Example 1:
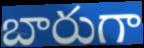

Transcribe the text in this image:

బారుగా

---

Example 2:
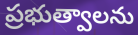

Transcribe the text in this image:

ప్రభుత్వాలను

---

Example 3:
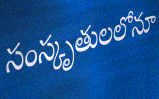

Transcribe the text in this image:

సంస్కృతులలోనూ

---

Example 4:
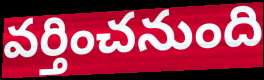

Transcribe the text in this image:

వర్తించనుంది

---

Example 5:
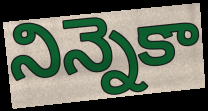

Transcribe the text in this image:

నిన్నెకా